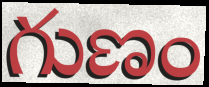
గుణం